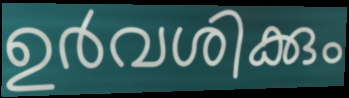
ഉർവശിക്കും